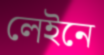
লেইনে